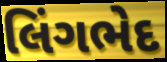
લિંગભેદ